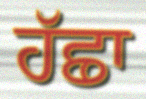
ਹੱਛਾ